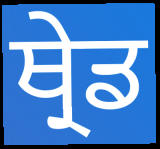
ਥ੍ਰੇਡ